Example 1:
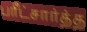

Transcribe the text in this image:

பரீட்சார்த்த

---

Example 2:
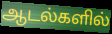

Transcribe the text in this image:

ஆடல்களில்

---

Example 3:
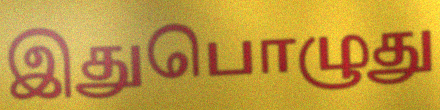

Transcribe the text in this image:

இதுபொழுது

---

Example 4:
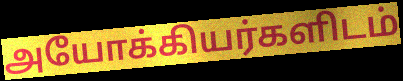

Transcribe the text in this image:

அயோக்கியர்களிடம்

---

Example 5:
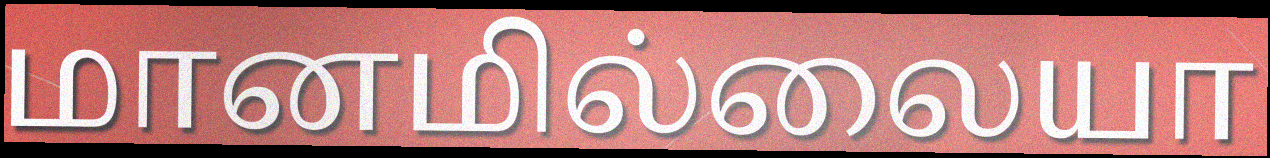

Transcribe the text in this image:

மானமில்லையா